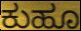
ಕುಹೂ